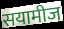
सयामीज